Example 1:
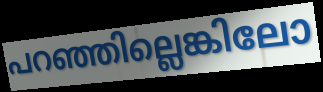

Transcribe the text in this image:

പറഞ്ഞില്ലെങ്കിലോ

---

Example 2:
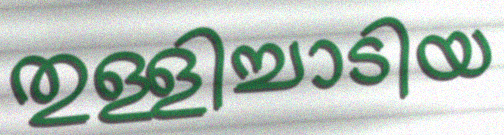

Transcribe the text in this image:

തുള്ളിച്ചാടിയ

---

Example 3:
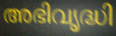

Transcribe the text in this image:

അഭിവൃദ്ധി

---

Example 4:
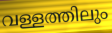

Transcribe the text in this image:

വള്ളത്തിലും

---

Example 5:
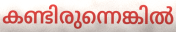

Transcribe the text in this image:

കണ്ടിരുന്നെങ്കിൽ